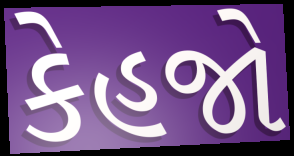
કેહજો